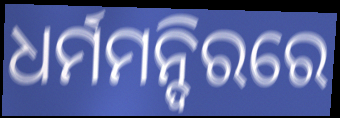
ଧର୍ମମନ୍ଦିରରେ